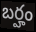
బర్హం